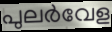
പുലർവേള